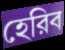
হেরিব